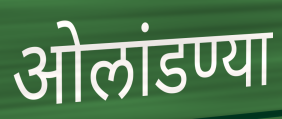
ओलांडण्या